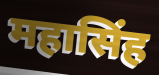
महासिंह